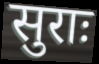
सुराः